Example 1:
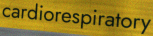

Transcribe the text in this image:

cardiorespiratory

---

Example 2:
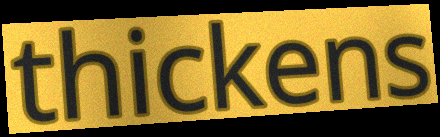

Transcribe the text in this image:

thickens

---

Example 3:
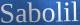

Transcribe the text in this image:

Sabolil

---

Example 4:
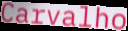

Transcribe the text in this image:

Carvalho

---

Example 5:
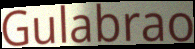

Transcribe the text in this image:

Gulabrao